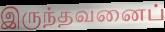
இருந்தவனைப்